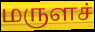
மருளச்